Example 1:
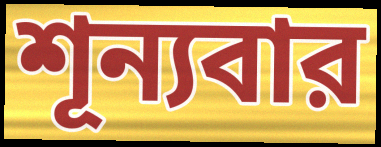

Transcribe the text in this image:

শূন্যবার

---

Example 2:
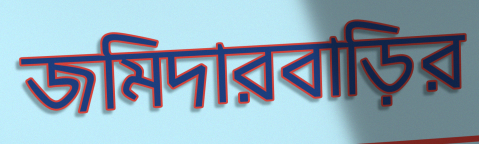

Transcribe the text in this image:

জমিদারবাড়ির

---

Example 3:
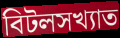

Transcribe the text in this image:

বিটলসখ্যাত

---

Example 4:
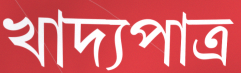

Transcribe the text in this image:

খাদ্যপাত্র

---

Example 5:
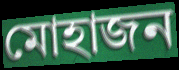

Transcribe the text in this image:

মোহাজন